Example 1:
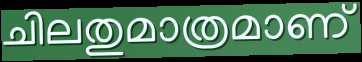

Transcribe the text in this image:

ചിലതുമാത്രമാണ്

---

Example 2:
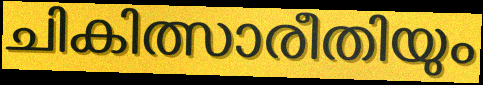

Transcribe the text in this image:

ചികിത്സാരീതിയും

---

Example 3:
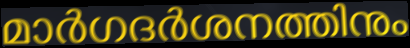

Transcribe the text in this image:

മാർഗദർശനത്തിനും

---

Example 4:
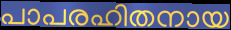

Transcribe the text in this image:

പാപരഹിതനായ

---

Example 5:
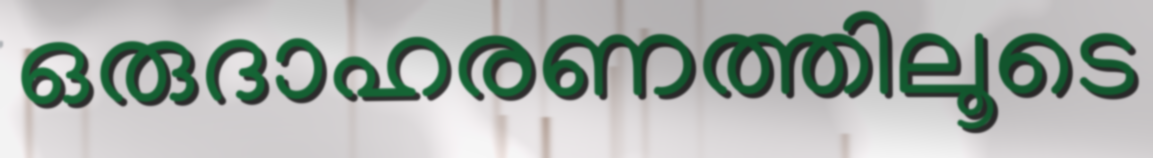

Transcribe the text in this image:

ഒരുദാഹരണത്തിലൂടെ